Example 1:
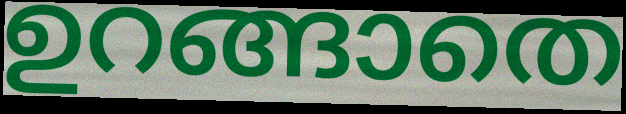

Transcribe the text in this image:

ഉറങ്ങാതെ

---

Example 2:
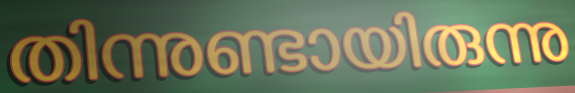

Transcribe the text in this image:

തിന്നുണ്ടായിരുന്നു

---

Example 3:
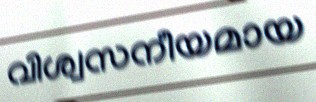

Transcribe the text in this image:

വിശ്വസനീയമായ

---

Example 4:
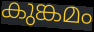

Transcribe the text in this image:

കുങ്കമം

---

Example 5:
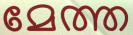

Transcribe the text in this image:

മേത്ത